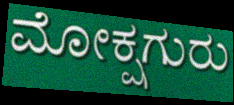
ಮೋಕ್ಷಗುರು